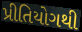
પ્રીતિયોગથી